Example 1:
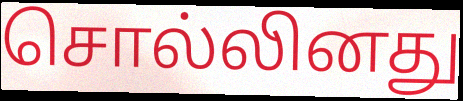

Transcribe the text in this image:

சொல்லினது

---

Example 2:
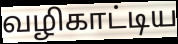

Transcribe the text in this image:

வழிகாட்டிய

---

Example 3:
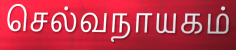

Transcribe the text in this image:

செல்வநாயகம்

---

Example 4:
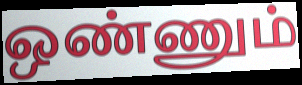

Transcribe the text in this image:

ஒண்ணும்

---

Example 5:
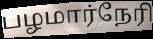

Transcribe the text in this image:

பழமார்நேரி